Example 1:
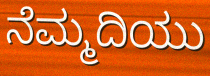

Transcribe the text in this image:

ನೆಮ್ಮದಿಯು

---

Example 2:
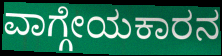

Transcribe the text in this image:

ವಾಗ್ಗೇಯಕಾರನ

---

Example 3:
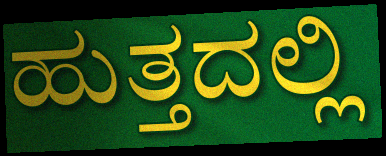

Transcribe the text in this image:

ಹುತ್ತದಲ್ಲಿ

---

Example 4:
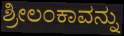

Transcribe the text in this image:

ಶ್ರೀಲಂಕಾವನ್ನು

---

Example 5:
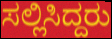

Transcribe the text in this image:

ಸಲ್ಲಿಸಿದ್ದರು